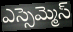
ఎస్సెమ్మెస్